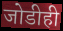
जोडीही